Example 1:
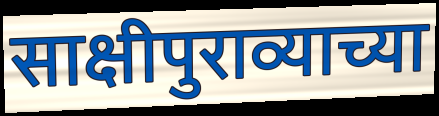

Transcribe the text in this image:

साक्षीपुराव्याच्या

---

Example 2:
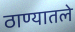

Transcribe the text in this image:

ठाण्यातले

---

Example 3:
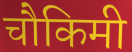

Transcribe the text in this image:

चौकिमी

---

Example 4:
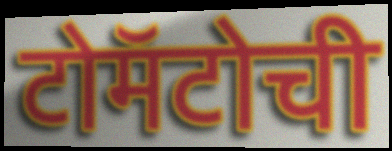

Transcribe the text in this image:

टोमॅटोची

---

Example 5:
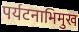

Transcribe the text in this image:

पर्यटनाभिमुख